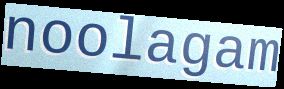
noolagam